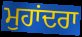
ਮੁਹਾਂਦਰਾ